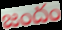
జందం